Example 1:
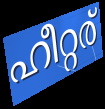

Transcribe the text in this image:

ഹീറ്റര്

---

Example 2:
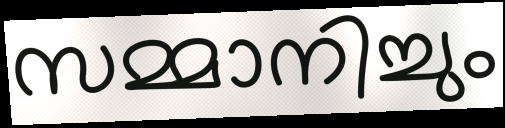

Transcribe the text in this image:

സമ്മാനിച്ചും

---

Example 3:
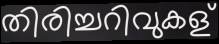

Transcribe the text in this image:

തിരിച്ചറിവുകള്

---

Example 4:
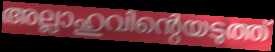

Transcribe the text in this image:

അല്ലാഹുവിന്റെയടുത്ത്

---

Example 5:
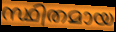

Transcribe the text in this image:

സ്ഥിതമായ